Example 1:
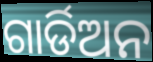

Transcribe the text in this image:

ଗାର୍ଡିଅନ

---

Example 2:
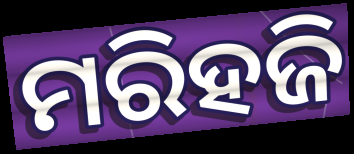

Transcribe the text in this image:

ମରିହଜି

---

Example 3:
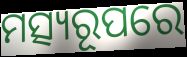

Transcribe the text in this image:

ମତ୍ସ୍ୟରୂପରେ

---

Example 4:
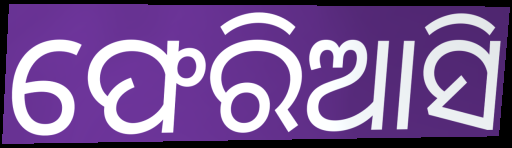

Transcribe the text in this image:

ଫେରିଆସି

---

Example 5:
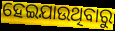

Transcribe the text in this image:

ହେଇଯାଉଥିବାରୁ